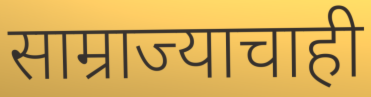
साम्राज्याचाही